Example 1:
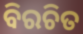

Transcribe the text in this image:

ବିରଚିତ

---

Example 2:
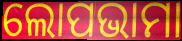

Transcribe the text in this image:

ଲୋପଭାମା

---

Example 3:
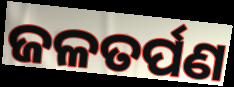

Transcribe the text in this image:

ଜଳତର୍ପଣ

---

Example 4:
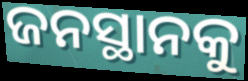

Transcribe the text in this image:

ଜନସ୍ଥାନକୁ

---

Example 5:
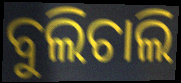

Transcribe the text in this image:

ବୁଲିଚାଲି